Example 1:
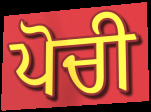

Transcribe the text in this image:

ਪੋਚੀ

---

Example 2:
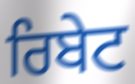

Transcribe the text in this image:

ਰਿਬੇਟ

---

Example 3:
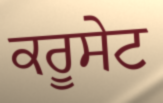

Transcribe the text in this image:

ਕਰੂਸੇਟ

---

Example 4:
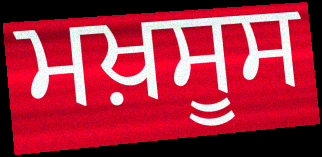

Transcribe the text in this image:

ਮਖ਼ਸੂਸ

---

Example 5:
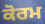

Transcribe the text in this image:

ਕੋਰਮ